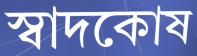
স্বাদকোষ